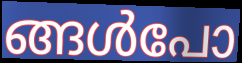
ങ്ങൾപോ